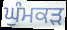
ਘੁੰਮਕੜ